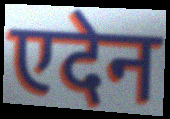
एदेन